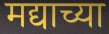
मद्याच्या